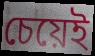
চেয়েই